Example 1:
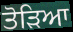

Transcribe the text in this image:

ਤੋਡ਼ਿਆ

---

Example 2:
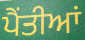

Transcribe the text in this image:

ਪੈਂਤੀਆਂ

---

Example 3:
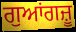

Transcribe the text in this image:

ਗੁਆਂਗਜ਼ੂ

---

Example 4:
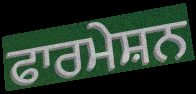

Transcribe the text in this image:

ਫਾਰਮੇਸ਼ਨ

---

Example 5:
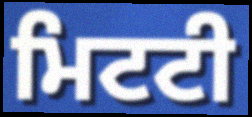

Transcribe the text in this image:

ਮਿਟਟੀ